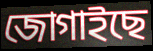
জোগাইছে